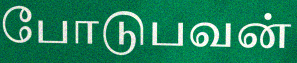
போடுபவன்